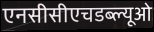
एनसीसीएचडब्ल्यूओ